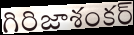
గిరిజాశంకర్